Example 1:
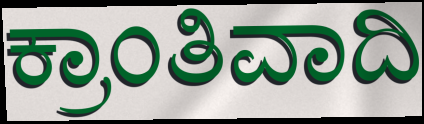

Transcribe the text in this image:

ಕ್ರಾಂತಿವಾದಿ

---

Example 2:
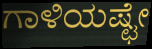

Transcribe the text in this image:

ಗಾಳಿಯಷ್ಟೇ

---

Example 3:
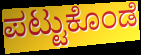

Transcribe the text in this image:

ಪಟ್ಟುಕೊಂಡೆ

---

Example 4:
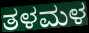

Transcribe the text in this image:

ತಳಮಳ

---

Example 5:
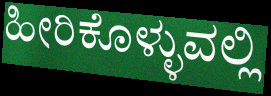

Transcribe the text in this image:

ಹೀರಿಕೊಳ್ಳುವಲ್ಲಿ